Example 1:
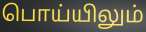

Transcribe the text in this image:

பொய்யிலும்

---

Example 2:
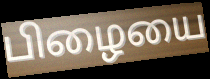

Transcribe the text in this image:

பிழையை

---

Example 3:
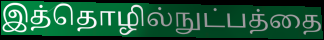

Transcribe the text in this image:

இத்தொழில்நுட்பத்தை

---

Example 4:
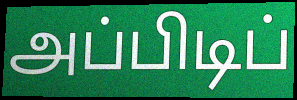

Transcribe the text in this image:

அப்பிடிப்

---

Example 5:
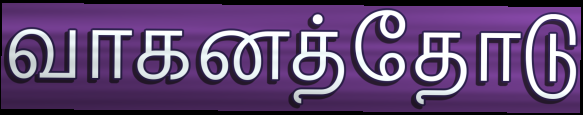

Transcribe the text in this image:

வாகனத்தோடு